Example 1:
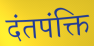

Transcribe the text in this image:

दंतपंक्ति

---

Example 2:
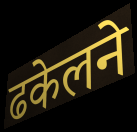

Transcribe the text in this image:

ढकेलने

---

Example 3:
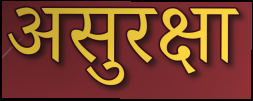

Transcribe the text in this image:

असुरक्षा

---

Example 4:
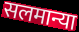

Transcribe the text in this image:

सलमान्या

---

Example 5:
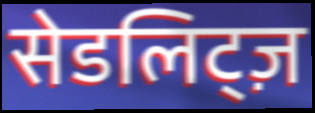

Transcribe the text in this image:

सेडलिट्ज़